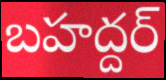
బహద్దర్